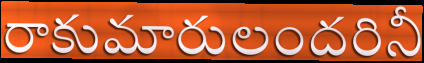
రాకుమారులందరినీ